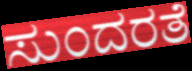
ಸುಂದರತೆ